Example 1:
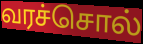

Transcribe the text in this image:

வரச்சொல்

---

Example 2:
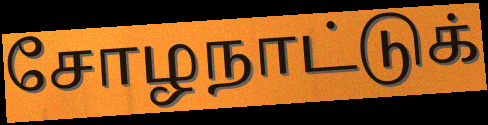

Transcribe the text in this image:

சோழநாட்டுக்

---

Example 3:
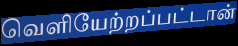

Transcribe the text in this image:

வெளியேற்றப்பட்டான்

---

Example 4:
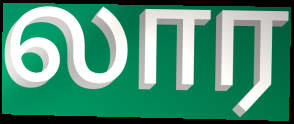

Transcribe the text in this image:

லார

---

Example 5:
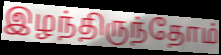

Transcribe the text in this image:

இழந்திருந்தோம்